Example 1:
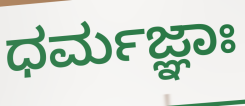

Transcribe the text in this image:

ಧರ್ಮಜ್ಞಾಃ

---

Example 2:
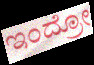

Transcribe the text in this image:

ಇಂದ್ರೋ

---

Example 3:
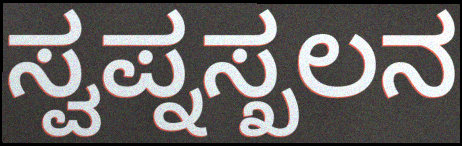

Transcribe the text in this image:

ಸ್ವಪ್ನಸ್ಖಲನ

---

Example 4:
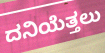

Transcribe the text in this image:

ದನಿಯೆತ್ತಲು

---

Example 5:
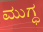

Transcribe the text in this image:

ಮುಗ್ಧ